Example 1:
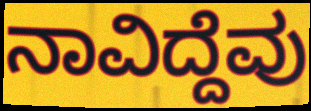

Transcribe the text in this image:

ನಾವಿದ್ದೆವು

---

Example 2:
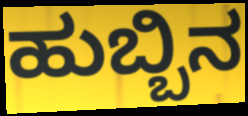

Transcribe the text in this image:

ಹುಬ್ಬಿನ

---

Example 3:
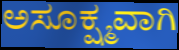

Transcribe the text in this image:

ಅಸೂಕ್ಷ್ಮವಾಗಿ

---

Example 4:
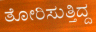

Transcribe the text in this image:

ತೋರಿಸುತ್ತಿದ್ದ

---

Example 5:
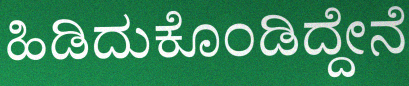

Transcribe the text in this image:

ಹಿಡಿದುಕೊಂಡಿದ್ದೇನೆ